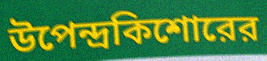
উপেন্দ্রকিশোরের